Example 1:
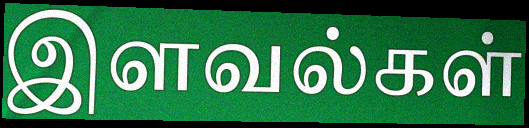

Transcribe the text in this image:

இளவல்கள்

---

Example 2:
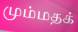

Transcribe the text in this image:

மும்மதக்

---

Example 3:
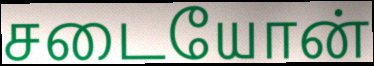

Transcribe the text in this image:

சடையோன்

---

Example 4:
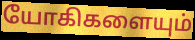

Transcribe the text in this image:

யோகிகளையும்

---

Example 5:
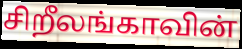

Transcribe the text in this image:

சிறீலங்காவின்